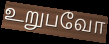
உறுபவோ